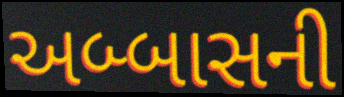
અબ્બાસની